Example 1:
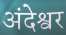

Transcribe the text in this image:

अंदेश्वर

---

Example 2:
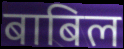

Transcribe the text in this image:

बाबिल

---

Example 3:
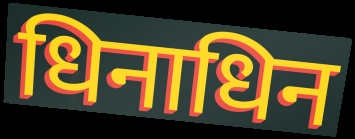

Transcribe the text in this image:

धिनाधिन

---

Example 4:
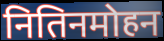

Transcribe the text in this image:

नितिनमोहन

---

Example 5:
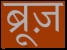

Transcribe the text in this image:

ब्रूज़